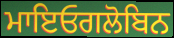
ਮਾਇਓਗਲੋਬਿਨ